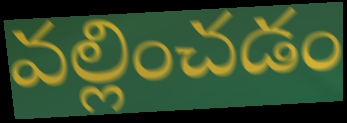
వల్లించడం